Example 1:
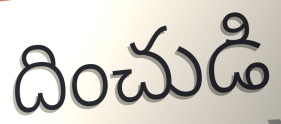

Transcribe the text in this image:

దించుడి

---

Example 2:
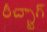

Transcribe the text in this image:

రీచ్స్టాగ్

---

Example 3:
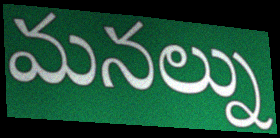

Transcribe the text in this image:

మనల్ను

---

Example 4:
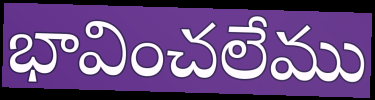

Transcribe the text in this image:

భావించలేము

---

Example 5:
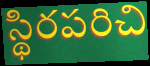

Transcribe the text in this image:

స్థిరపరిచి